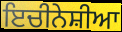
ਇਚੀਨੇਸ਼ੀਆ